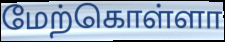
மேற்கொள்ளா